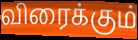
விரைக்கும்